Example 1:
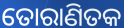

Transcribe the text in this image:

ତୋରାଣିତକ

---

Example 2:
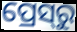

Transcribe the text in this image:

ପ୍ରେସ୍‍ରୁ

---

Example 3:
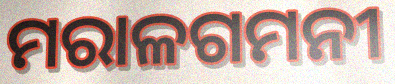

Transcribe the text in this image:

ମରାଳଗମନୀ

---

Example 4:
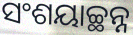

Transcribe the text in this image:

ସଂଶୟାଚ୍ଛନ୍ନ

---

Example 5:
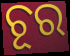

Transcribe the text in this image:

ଚୂର